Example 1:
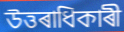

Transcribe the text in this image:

উত্তৰাধিকাৰী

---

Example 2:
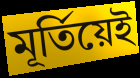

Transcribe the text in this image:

মূৰ্তিয়েই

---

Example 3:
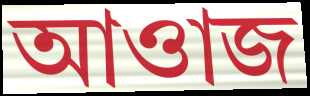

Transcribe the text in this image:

আওাজ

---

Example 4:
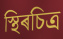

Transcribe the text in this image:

স্থিৰচিত্ৰ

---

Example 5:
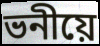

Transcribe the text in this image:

ভনীয়ে